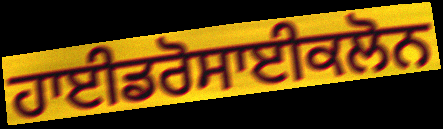
ਹਾਈਡਰੋਸਾਈਕਲੋਨ